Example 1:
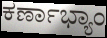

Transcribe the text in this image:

ಕರ್ಣಾಭ್ಯಾಂ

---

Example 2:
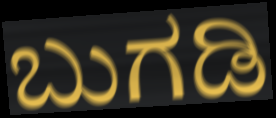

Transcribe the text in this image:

ಬುಗಡಿ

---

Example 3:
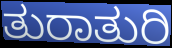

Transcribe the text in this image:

ತುರಾತುರಿ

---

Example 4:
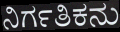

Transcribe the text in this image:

ನಿರ್ಗತಿಕನು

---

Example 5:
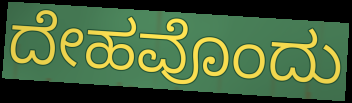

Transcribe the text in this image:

ದೇಹವೊಂದು